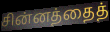
சின்னத்தைத்